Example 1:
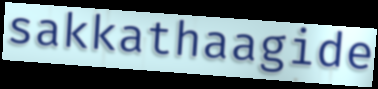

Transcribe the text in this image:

sakkathaagide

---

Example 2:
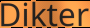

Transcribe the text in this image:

Dikter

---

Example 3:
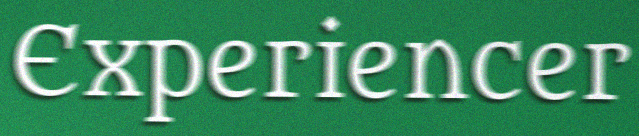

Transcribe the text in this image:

Experiencer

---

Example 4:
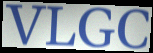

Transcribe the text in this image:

VLGC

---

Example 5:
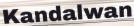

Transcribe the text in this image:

Kandalwan